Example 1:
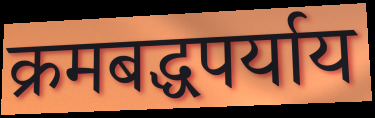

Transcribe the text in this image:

क्रमबद्धपर्याय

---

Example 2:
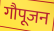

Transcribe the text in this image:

गौपूजन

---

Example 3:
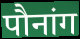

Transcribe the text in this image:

पौनांग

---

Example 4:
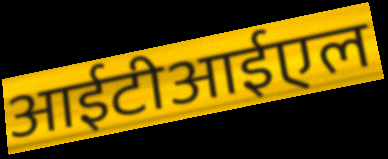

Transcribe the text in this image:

आईटीआईएल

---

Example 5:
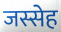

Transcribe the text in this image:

जस्सेह